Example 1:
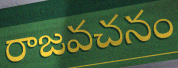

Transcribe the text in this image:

రాజవచనం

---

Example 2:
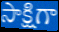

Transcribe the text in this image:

సాక్షిగా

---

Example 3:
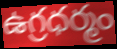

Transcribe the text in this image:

ఉగ్రధర్మం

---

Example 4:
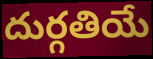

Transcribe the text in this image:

దుర్గతియే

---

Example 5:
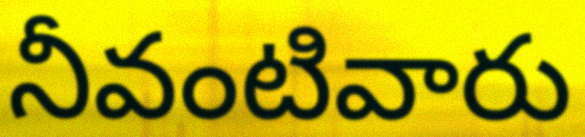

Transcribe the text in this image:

నీవంటివారు